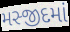
મસ્જીદમાં